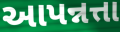
આપન્નત્તા